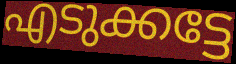
എടുക്കട്ടേ